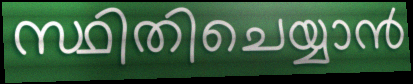
സ്ഥിതിചെയ്യാൻ